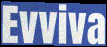
Evviva